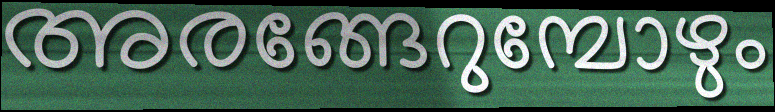
അരങ്ങേറുമ്പോഴും